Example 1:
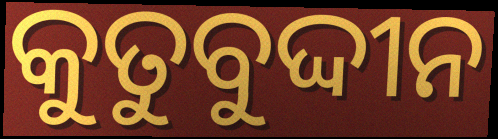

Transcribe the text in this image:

କୁତୁବୁଦ୍ଦୀନ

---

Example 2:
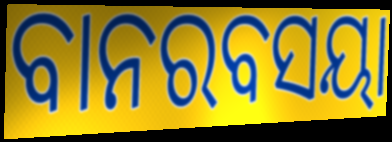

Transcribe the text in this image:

ବାନରବସୟା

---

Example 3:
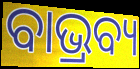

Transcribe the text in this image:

ବାଭ୍ରବ୍ୟ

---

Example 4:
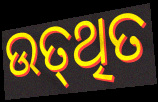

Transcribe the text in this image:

ଉତ୍‌ଥିତ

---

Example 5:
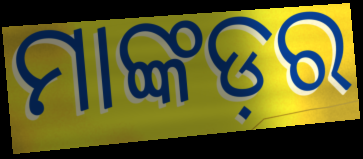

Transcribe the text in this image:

ମାଙ୍କଡ଼ର